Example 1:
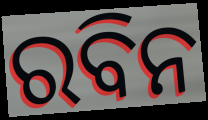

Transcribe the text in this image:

ରବିନ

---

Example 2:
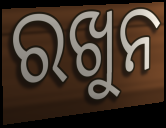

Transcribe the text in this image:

ରଖୁନ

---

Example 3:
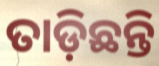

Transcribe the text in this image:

ତାଡ଼ିଛନ୍ତି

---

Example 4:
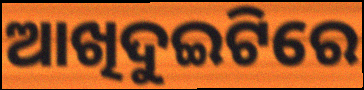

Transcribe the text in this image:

ଆଖିଦୁଇଟିରେ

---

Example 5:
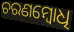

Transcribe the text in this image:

ଚରଣମ୍ବୋଧି